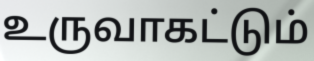
உருவாகட்டும்